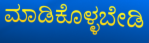
ಮಾಡಿಕೊಳ್ಳಬೇಡಿ